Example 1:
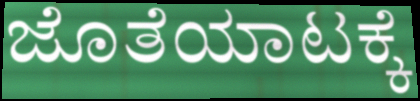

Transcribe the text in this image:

ಜೊತೆಯಾಟಕ್ಕೆ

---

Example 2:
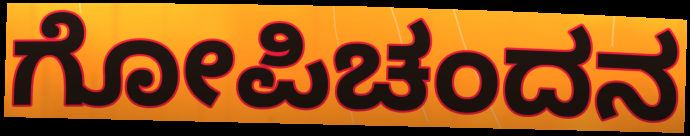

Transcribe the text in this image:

ಗೋಪಿಚಂದನ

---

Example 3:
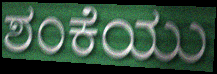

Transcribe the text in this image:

ಶಂಕೆಯು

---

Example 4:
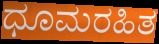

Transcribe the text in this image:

ಧೂಮರಹಿತ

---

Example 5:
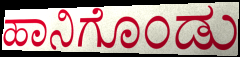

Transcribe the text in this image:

ಹಾನಿಗೊಂಡು